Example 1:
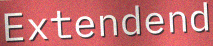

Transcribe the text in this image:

Extendend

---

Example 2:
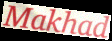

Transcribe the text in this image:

Makhad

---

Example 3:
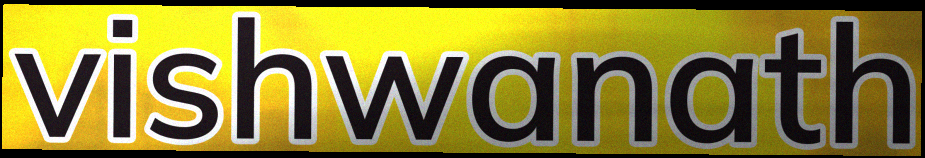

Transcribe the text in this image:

vishwanath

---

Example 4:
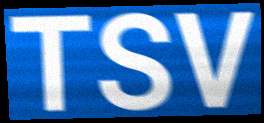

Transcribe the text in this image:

TSV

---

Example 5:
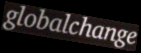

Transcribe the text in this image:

globalchange